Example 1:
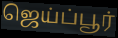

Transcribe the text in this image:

ஜெய்ப்பூர்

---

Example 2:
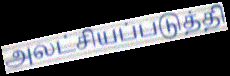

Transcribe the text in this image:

அலட்சியப்படுத்தி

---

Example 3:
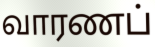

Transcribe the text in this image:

வாரணப்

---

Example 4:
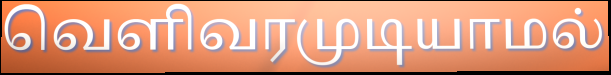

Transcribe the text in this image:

வெளிவரமுடியாமல்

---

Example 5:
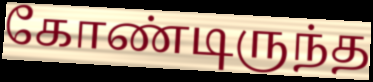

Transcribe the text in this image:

கோண்டிருந்த